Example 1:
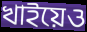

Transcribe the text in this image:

খাইয়েও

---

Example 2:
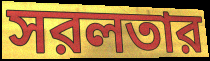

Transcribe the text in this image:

সরলতার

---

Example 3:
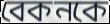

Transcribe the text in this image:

বেকনকে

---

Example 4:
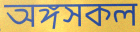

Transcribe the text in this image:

অঙ্গসকল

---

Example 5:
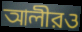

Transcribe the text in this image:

আলীরও